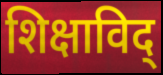
शिक्षाविद्